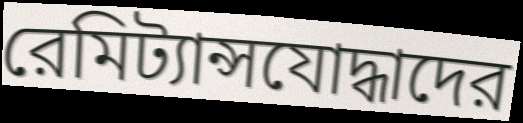
রেমিট্যান্সযোদ্ধাদের